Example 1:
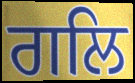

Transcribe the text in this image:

ਗਲਿ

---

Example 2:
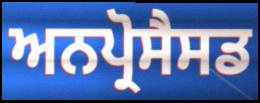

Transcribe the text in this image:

ਅਨਪ੍ਰੋਸੈਸਡ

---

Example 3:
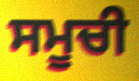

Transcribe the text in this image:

ਸਮੂਚੀ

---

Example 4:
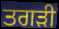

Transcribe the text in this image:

ਤਗੜੀ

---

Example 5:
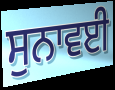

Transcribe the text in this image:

ਸੁਨਾਵਈ